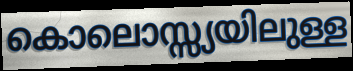
കൊലൊസ്സ്യയിലുള്ള